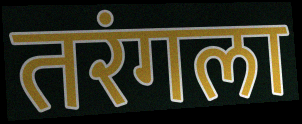
तरंगला